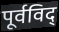
पूर्वविद्